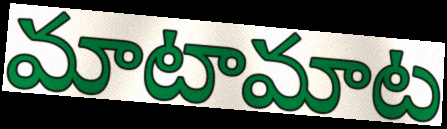
మాటామాట